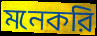
মনেকরি